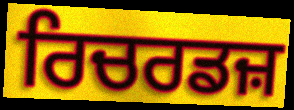
ਰਿਚਰਡਜ਼